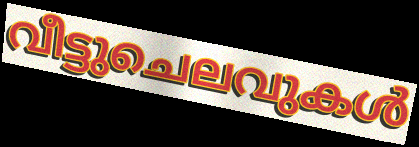
വീട്ടുചെലവുകൾ